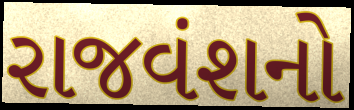
રાજવંશનો